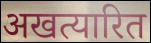
अखत्यारित